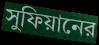
সুফিয়ানের